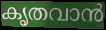
കൃതവാൻ